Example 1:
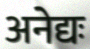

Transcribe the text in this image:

अनेद्यः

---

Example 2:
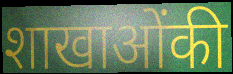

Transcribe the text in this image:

शाखाओंकी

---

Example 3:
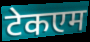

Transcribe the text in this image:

टेकएम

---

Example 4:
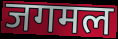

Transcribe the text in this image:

जगमल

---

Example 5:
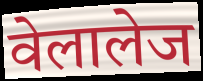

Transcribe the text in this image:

वेलालेज